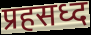
प्रहसध्द